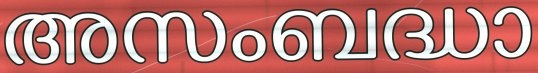
അസംബദ്ധാ